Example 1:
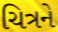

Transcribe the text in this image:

ચિત્રને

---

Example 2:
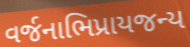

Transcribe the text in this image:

વર્જનાભિપ્રાયજન્ય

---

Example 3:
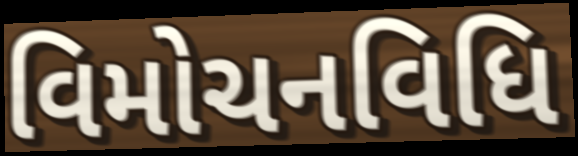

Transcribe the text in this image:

વિમોચનવિધિ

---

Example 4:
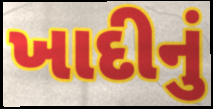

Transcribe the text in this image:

ખાદીનું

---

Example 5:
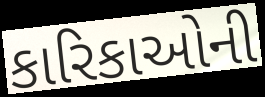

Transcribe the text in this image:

કારિકાઓની